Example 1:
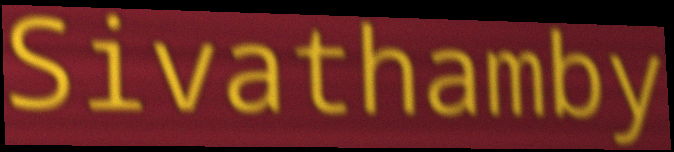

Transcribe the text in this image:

Sivathamby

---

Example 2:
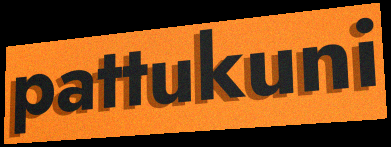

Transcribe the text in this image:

pattukuni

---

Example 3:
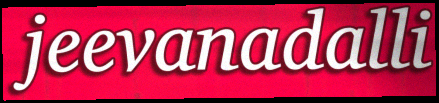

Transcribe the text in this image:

jeevanadalli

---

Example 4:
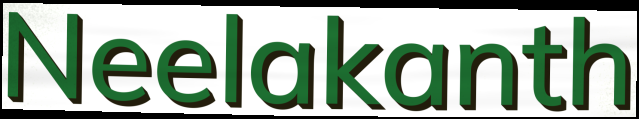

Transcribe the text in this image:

Neelakanth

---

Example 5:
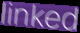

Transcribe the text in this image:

linked